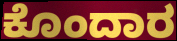
ಕೊಂದಾರ